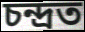
চন্দ্ৰত